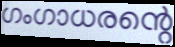
ഗംഗാധരന്റെ